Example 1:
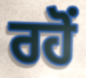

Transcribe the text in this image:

ਰਹੋਂ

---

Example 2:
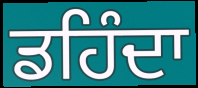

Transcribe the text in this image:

ਡਹਿੰਦਾ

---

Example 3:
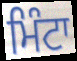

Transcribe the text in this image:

ਮਿੰਟਾ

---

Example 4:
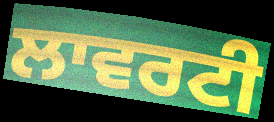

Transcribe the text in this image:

ਲਾਵਰਟੀ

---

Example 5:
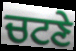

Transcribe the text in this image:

ਚਟਣੇ